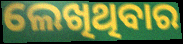
ଲେଖିଥିବାର